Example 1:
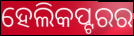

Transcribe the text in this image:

ହେଲିକପ୍ଟରର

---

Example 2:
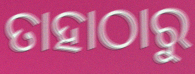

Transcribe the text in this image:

ତାହାଠାରୁ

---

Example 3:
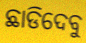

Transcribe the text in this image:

ଛାଡିଦେବୁ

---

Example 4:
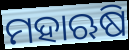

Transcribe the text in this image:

ମହାଋଷି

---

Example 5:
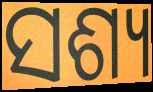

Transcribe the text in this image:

ସଶ୍ୟ